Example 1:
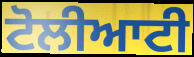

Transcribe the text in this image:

ਟੋਲੀਆਟੀ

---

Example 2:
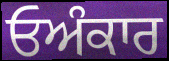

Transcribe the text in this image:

ਓਅੰਕਾਰ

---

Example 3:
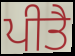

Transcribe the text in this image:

ਪੀਤੈ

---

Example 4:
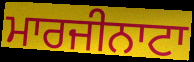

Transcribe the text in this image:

ਮਾਰਜੀਨਾਟਾ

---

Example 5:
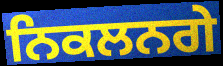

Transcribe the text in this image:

ਨਿਕਲਨਗੇ